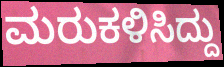
ಮರುಕಳಿಸಿದ್ದು